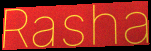
Rasha